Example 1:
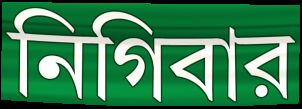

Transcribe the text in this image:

নিগিবার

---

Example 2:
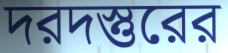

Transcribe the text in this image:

দরদস্তুরের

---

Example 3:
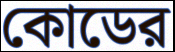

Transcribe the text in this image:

কোডের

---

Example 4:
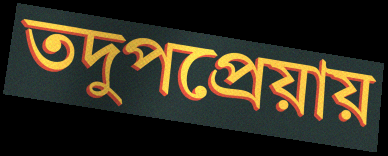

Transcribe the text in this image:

তদুপপ্রেয়ায়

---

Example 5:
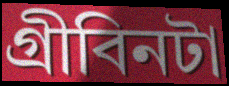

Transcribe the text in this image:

গ্রীবিনটা